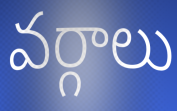
వర్గాలు